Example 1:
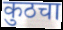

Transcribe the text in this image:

कुठचा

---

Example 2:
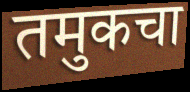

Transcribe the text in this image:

तमुकचा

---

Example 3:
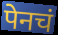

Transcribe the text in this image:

पेनचं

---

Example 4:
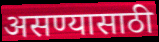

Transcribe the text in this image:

असण्यासाठी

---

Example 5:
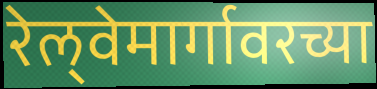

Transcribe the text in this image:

रेल्वेमार्गावरच्या